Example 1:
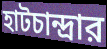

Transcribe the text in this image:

হাটচান্দ্রার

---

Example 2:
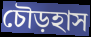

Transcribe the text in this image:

চৌড়হাস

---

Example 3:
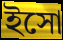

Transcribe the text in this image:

ইসো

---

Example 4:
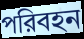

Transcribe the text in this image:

পরিবহন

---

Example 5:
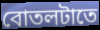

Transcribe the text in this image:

বোতলটাতে